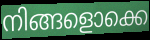
നിങ്ങളൊക്കെ